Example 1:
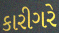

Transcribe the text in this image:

કારીગરે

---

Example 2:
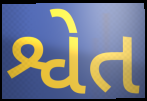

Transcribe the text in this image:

શ્વેત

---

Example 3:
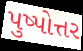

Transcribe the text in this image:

પુષ્પોત્તર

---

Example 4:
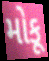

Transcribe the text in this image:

મોકૂ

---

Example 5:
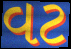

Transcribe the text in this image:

વટ